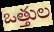
ఒత్తుల